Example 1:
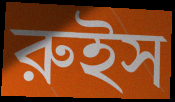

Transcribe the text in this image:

রুইস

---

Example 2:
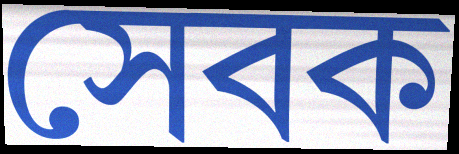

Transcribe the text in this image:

সেবক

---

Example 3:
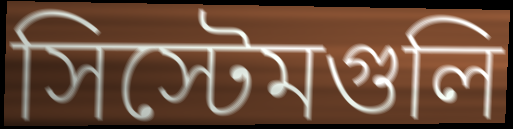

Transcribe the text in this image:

সিস্টেমগুলি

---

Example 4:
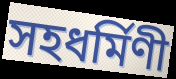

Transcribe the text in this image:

সহধর্মিণী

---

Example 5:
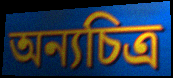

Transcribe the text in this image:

অন্যচিত্র